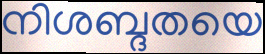
നിശബ്ദതയെ